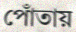
পোঁতায়